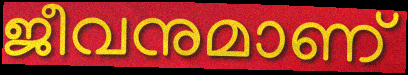
ജീവനുമാണ്